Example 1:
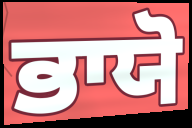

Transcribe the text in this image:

ਭਾਯੋ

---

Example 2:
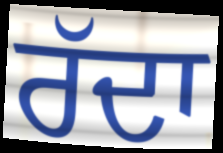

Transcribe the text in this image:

ਰੱਦਾ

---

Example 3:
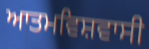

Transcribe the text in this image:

ਆਤਮਵਿਸ਼ਵਾਸੀ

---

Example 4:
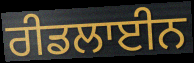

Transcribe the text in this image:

ਰੀਡਲਾਈਨ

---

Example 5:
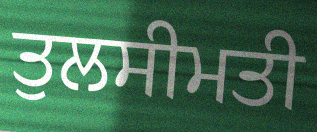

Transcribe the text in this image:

ਤੁਲਸੀਮਤੀ